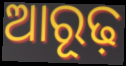
ଆରୂଢ଼